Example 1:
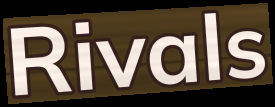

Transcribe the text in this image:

Rivals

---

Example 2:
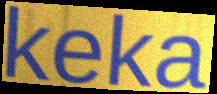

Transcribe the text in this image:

keka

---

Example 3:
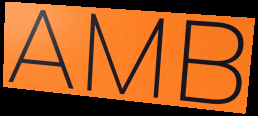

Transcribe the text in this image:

AMB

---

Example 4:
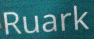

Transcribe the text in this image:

Ruark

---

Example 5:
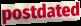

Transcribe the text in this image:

postdated